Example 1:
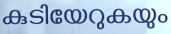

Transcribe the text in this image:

കുടിയേറുകയും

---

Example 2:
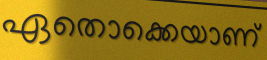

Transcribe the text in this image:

ഏതൊക്കെയാണ്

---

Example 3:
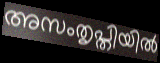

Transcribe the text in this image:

അസംതൃപ്തിയിൽ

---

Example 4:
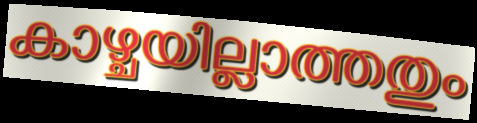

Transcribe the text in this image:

കാഴ്ചയില്ലാത്തതും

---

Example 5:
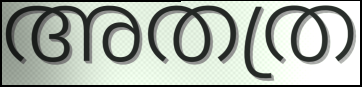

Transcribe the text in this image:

അതത്ര